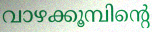
വാഴക്കൂമ്പിന്റെ